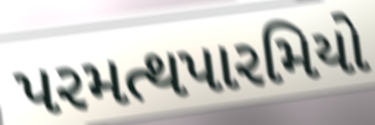
પરમત્થપારમિયો